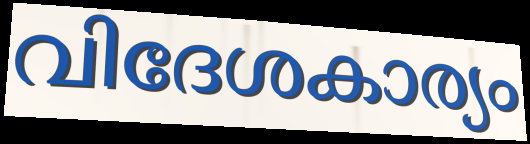
വിദേശകാര്യം